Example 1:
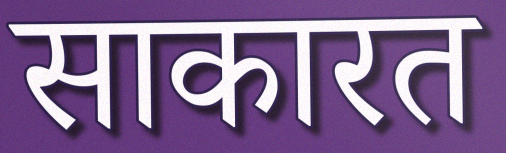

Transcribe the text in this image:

साकारत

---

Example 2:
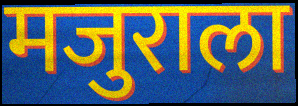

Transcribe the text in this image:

मजुराला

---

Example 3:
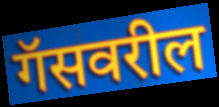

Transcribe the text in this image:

गॅसवरील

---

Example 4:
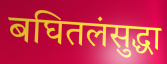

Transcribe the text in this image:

बघितलंसुद्धा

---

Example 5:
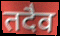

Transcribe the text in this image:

तदैव